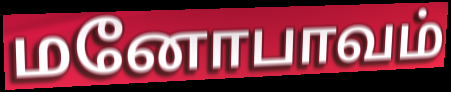
மனோபாவம்